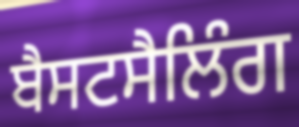
ਬੈਸਟਸੈਲਿੰਗ